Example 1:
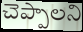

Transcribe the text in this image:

చెప్పాలని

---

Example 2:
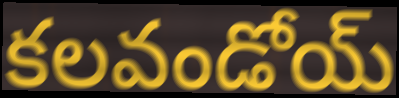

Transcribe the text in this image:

కలవండోయ్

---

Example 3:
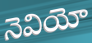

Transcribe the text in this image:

నెవియో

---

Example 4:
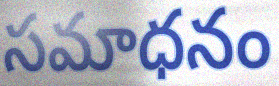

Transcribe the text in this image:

సమాధనం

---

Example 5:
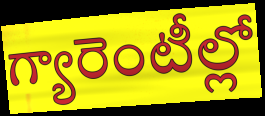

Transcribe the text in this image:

గ్యారెంటీల్లో